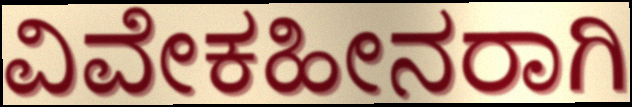
ವಿವೇಕಹೀನರಾಗಿ